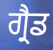
ਗ੍ਰੈਡ